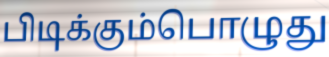
பிடிக்கும்பொழுது